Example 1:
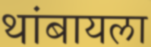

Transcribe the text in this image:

थांबायला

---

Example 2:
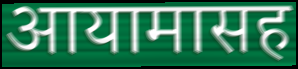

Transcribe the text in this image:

आयामासह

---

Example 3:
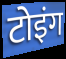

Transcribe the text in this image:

टोइंग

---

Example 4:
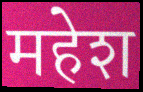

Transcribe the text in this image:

महेश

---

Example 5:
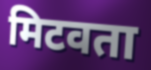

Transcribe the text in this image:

मिटवता